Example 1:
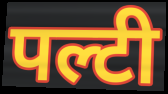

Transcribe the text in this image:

पल्टी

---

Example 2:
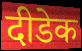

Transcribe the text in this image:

दीडेक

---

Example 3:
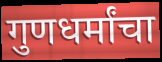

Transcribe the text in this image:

गुणधर्मांचा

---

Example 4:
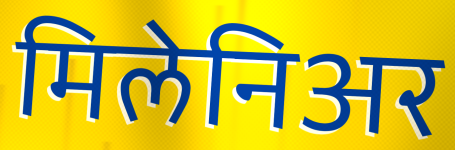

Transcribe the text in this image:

मिलेनिअर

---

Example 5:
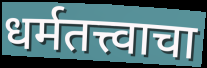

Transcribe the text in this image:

धर्मतत्त्वाचा